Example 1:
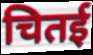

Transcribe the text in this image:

चितई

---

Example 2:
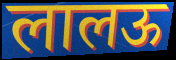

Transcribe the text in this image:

लालऊ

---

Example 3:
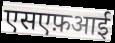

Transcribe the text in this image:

एसएफ़आई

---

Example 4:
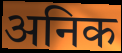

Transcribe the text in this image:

अनिक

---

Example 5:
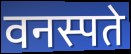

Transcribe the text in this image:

वनस्पते